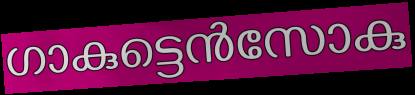
ഗാകുട്ടെൻസോകു